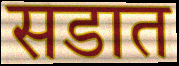
सडात